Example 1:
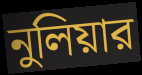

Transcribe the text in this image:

নুলিয়ার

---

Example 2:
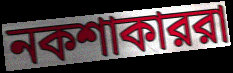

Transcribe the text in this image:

নকশাকাররা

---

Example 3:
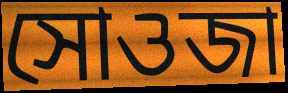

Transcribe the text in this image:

সোওজা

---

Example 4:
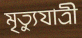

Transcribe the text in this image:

মৃত্যুযাত্রী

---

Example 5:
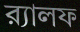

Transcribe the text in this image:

র‍্যালফ